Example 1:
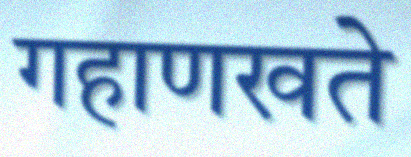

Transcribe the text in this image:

गहाणखते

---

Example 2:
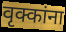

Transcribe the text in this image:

वृक्कांना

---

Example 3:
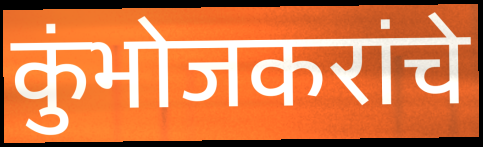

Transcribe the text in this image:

कुंभोजकरांचे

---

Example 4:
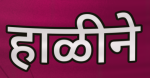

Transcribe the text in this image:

हाळीने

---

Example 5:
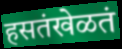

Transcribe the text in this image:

हसतंखेळतं